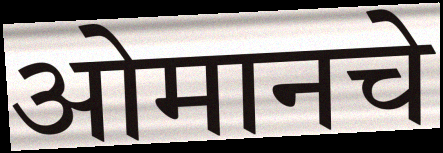
ओमानचे